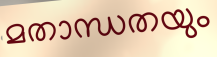
മതാന്ധതയും